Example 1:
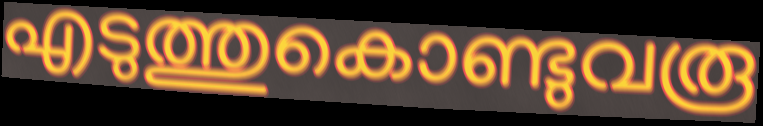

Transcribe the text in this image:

എടുത്തുകൊണ്ടുവരൂ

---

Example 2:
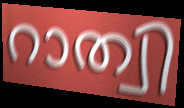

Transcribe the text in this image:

റാത്വി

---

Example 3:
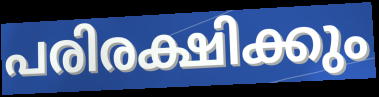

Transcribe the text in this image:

പരിരക്ഷിക്കും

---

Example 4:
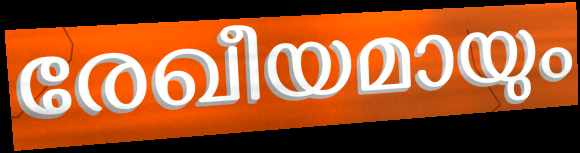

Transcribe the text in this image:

രേഖീയമായും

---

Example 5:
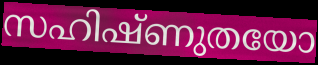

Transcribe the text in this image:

സഹിഷ്ണുതയോ